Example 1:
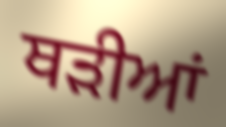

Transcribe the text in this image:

ਥੜੀਆਂ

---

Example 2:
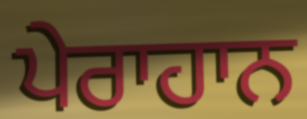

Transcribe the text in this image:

ਪੇਰਾਹਾਨ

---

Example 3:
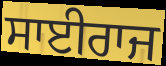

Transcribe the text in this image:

ਸਾਈਰਾਜ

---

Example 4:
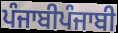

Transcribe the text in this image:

ਪੰਜਾਬੀਪੰਜਾਬੀ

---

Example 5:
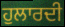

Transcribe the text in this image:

ਹੁਲਾਰਦੀ